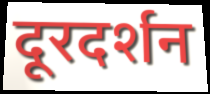
दूरदर्शन